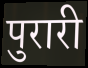
पुरारी